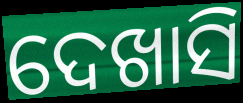
ଦେଖାସି